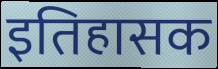
इतिहासक